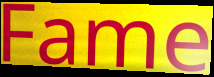
Fame